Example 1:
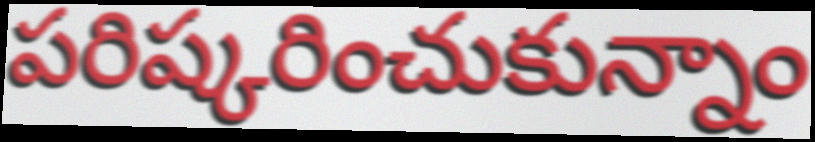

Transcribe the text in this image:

పరిష్కరించుకున్నాం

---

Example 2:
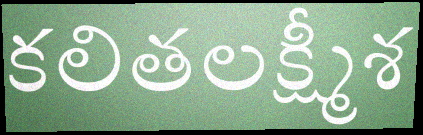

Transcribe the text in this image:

కలితలక్ష్మీశ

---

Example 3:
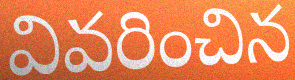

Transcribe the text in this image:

వివరించిన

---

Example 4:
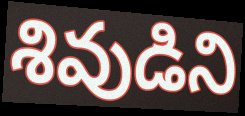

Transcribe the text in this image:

శివుడిని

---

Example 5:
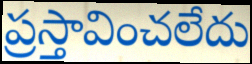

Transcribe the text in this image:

ప్రస్తావించలేదు